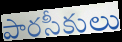
పారసీకులు